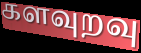
களவுறவு